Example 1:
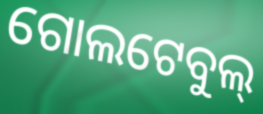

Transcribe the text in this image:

ଗୋଲଟେବୁଲ୍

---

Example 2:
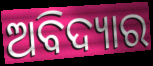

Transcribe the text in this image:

ଅବିଦ୍ୟାର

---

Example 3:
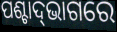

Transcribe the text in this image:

ପଶ୍ଚାଦ୍‍ଭାଗରେ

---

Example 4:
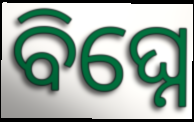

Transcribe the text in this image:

ବିଘ୍ନେ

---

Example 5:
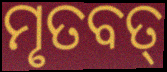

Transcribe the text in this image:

ମୃତବତ୍